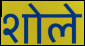
शोले